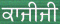
ਕਾਜੀਜੀ